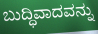
ಬುದ್ಧಿವಾದವನ್ನು